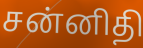
சன்னிதி